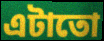
এটাতো